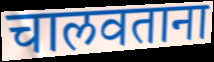
चालवताना